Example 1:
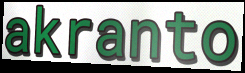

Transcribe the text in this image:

akranto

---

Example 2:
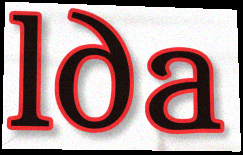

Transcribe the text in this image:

lda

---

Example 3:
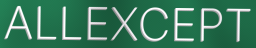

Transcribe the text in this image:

ALLEXCEPT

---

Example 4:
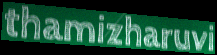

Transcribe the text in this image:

thamizharuvi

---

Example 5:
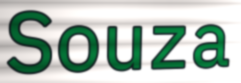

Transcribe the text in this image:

Souza